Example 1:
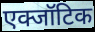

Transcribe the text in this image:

एक्जॉटिक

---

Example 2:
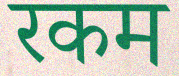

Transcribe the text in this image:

रकम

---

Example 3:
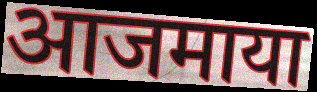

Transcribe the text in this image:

आजमाया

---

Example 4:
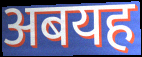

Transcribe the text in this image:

अबयह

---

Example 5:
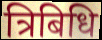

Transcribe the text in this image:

त्रिबिधि